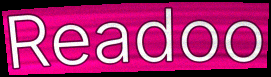
Readoo